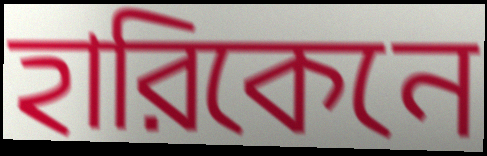
হারিকেনে